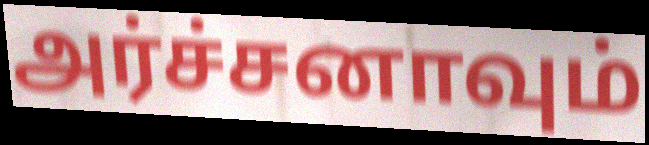
அர்ச்சனாவும்